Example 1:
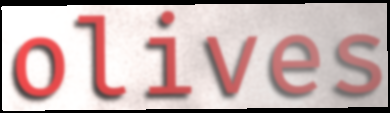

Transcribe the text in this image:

olives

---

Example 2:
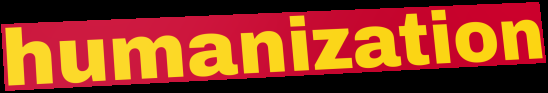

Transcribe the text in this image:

humanization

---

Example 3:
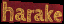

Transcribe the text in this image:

harake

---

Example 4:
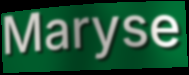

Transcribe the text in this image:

Maryse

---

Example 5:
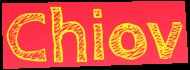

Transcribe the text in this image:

Chiov